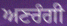
ਅਣਰੰਗੀ